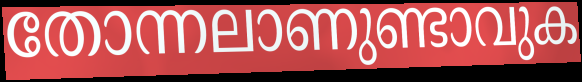
തോന്നലാണുണ്ടാവുക